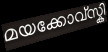
മയക്കോവ്സ്കി